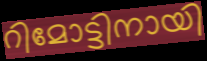
റിമോട്ടിനായി